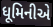
ધૂમિનીએ